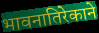
भावनातिरेकाने